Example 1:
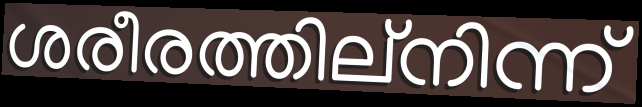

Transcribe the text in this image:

ശരീരത്തില്നിന്ന്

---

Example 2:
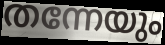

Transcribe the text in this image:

തന്നേയും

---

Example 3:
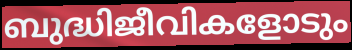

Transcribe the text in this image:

ബുദ്ധിജീവികളോടും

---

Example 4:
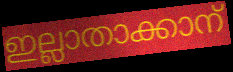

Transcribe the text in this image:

ഇല്ലാതാക്കാന്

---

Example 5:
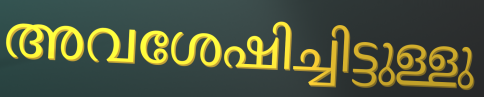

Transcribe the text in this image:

അവശേഷിച്ചിട്ടുള്ളു